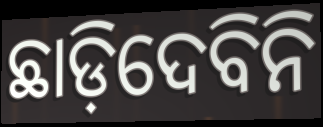
ଛାଡ଼ିଦେବିନି